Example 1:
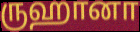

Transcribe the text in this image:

ருஹானா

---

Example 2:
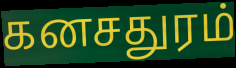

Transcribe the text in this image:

கனசதுரம்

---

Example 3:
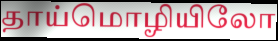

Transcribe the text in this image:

தாய்மொழியிலோ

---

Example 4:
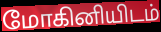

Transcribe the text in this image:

மோகினியிடம்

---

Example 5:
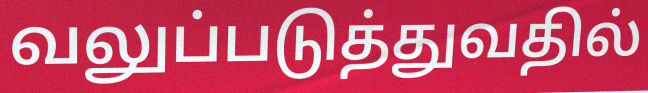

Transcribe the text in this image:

வலுப்படுத்துவதில்